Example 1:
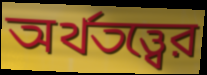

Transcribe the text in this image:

অর্থতত্ত্বের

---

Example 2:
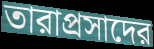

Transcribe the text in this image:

তারাপ্রসাদের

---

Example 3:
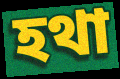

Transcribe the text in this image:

হথা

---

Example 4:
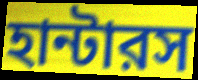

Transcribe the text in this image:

হান্টারস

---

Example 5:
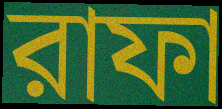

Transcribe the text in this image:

রাফা